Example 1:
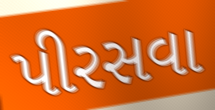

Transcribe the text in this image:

પીરસવા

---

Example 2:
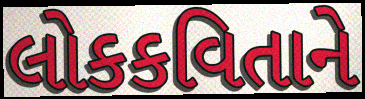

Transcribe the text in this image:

લોકકવિતાને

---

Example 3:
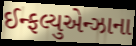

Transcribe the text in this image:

ઈન્ફલ્યુએન્ઝાના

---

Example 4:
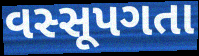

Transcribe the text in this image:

વસ્સૂપગતા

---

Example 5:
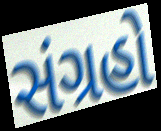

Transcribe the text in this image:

સંગ્રહો